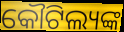
କୌଟିଲ୍ୟଙ୍କ